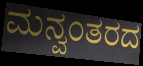
ಮನ್ವಂತರದ